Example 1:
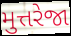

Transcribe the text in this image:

મુત્તરેજા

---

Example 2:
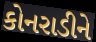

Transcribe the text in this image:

કોનરાડીને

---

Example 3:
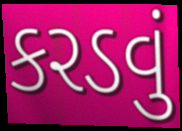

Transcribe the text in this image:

કરડવું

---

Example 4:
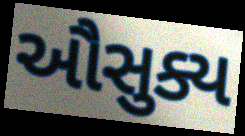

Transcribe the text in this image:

ઔસુક્ય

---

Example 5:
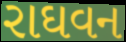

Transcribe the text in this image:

રાઘવન